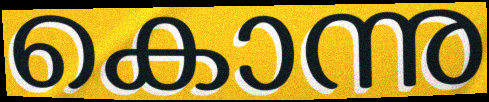
കൊന്നു